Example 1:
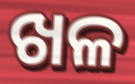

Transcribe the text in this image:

ଖଳ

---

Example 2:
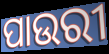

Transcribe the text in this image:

ପାଉରୀ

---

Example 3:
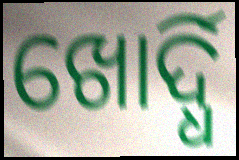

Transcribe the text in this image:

ଖୋର୍ଦ୍ଧି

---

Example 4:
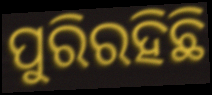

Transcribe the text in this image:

ପୁରିରହିଛି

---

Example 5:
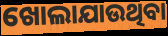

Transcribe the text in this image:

ଖୋଲାଯାଉଥିବା